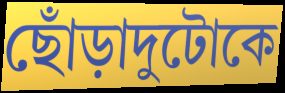
ছোঁড়াদুটোকে